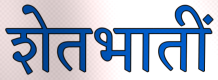
शेतभातीं